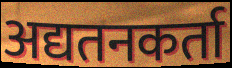
अद्यतनकर्ता